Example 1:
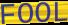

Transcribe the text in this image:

FOOL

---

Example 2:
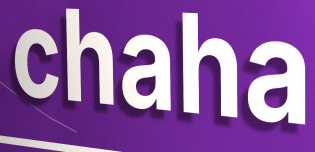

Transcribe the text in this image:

chaha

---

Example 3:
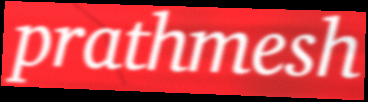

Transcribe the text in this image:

prathmesh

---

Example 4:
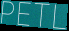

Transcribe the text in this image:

PETL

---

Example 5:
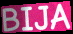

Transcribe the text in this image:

BIJA